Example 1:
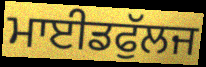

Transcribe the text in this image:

ਮਾਈਡਫੁੱਲਜ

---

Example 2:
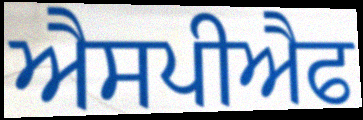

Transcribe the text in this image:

ਐਸਪੀਐਫ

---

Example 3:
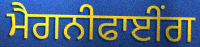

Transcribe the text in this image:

ਮੈਗਨੀਫਾਈਂਗ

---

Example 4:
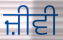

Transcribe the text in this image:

ਜ਼ੀਵੀ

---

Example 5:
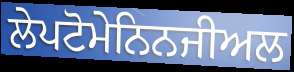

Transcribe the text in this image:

ਲੇਪਟੋਮੇਨਿਨਜੀਅਲ